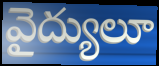
వైద్యులూ